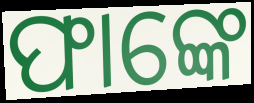
ଫାଙ୍କେ